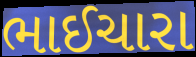
ભાઈચારા